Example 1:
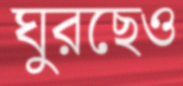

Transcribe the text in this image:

ঘুরছেও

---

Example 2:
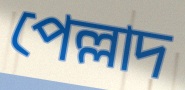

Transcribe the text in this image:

পেল্লাদ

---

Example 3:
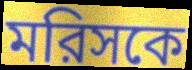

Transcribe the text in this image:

মরিসকে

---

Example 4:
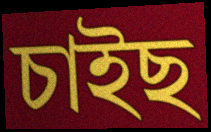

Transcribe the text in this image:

চাইছ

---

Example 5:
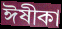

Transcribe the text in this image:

ঈষীকা